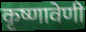
कृष्णावेणी